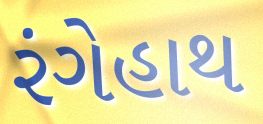
રંગેહાથ